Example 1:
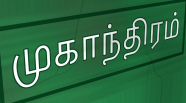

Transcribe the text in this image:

முகாந்திரம்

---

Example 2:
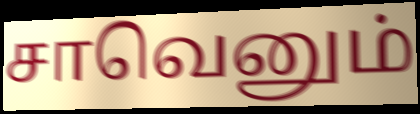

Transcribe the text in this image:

சாவெனும்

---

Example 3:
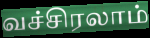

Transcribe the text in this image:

வச்சிரலாம்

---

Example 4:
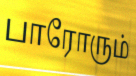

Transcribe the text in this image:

பாரோரும்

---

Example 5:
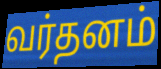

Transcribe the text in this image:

வர்தனம்